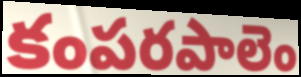
కంపరపాలెం